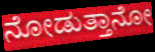
ನೋಡುತ್ತಾನೋ